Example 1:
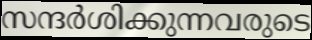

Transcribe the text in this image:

സന്ദർശിക്കുന്നവരുടെ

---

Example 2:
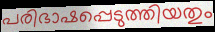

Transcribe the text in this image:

പരിഭാഷപ്പെടുത്തിയതും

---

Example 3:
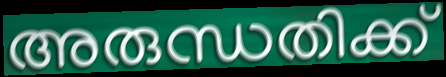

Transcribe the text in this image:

അരുന്ധതിക്ക്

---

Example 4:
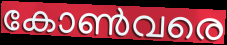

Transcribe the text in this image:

കോൺവരെ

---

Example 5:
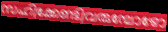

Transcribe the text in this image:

സഹിക്കേണ്ടിവരുമ്പോഴോ